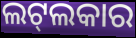
ଲଟ୍‌ଲକାର